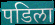
पडिला